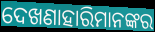
ଦେଖଣାହାରିମାନଙ୍କର